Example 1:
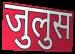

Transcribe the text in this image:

जुलुस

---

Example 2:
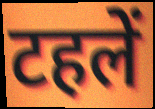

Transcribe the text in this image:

टहलें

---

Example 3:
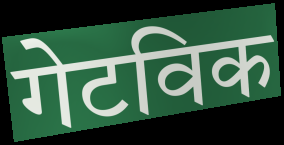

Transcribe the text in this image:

गेटविक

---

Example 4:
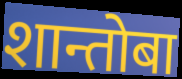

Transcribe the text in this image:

शान्तोबा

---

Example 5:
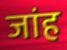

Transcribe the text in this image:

जांह